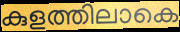
കുളത്തിലാകെ